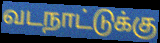
வடநாட்டுக்கு